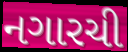
નગારચી